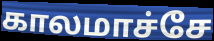
காலமாச்சே